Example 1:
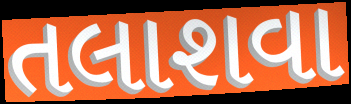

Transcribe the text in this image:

તલાશવા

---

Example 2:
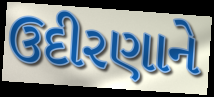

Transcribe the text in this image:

ઉદીરણાને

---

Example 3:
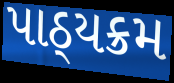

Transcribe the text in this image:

પાઠ્યક્રમ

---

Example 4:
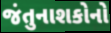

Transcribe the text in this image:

જંતુનાશકોનો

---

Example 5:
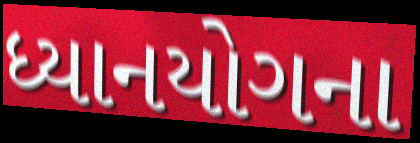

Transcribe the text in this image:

ધ્યાનયોગના